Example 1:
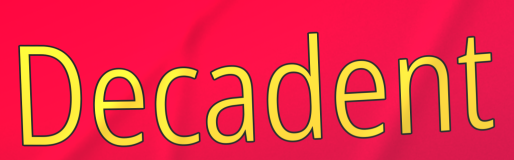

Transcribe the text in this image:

Decadent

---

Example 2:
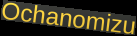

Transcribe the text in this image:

Ochanomizu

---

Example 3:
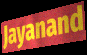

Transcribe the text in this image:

Jayanand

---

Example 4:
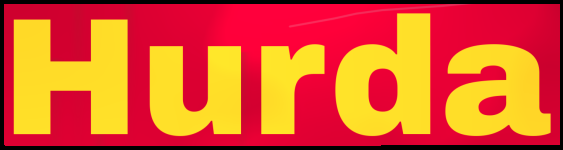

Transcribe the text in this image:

Hurda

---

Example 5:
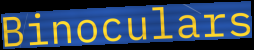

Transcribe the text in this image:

Binoculars